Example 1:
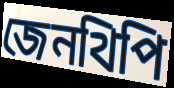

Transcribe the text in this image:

জেনথিপি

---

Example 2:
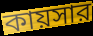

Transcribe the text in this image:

কায়সার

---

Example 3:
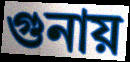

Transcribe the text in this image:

গুনায়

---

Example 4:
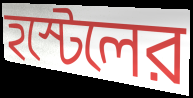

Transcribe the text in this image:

হস্টেলের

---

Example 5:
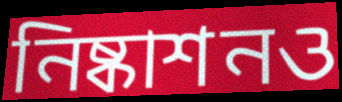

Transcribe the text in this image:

নিষ্কাশনও